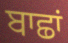
ਬਾਛਾਂ